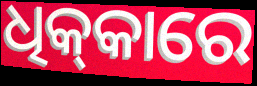
ଧିକ୍‌କାରେ